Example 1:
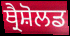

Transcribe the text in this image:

ਥ੍ਰੈਸ਼ੋਲਡ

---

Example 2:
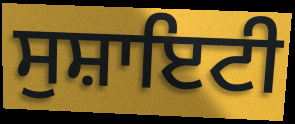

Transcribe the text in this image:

ਸੁਸ਼ਾਇਟੀ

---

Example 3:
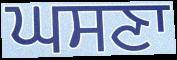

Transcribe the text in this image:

ਘਸਣਾ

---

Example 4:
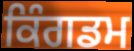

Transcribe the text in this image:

ਕਿੰਗਡਮ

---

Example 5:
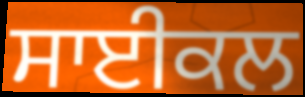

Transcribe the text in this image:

ਸਾਈਕਲ